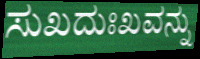
ಸುಖದುಃಖವನ್ನು